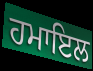
ਹਮਾਇਲ